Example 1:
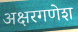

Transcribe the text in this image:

अक्षरगणेश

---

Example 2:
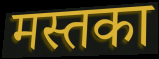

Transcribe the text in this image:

मस्तका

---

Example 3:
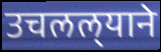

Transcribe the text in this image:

उचलल्याने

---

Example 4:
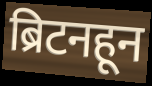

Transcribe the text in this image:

ब्रिटनहून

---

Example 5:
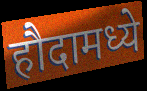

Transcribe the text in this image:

हौदामध्ये